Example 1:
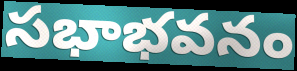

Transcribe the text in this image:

సభాభవనం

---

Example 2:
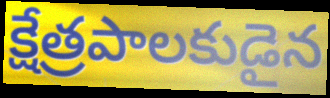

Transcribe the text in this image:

క్షేత్రపాలకుడైన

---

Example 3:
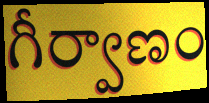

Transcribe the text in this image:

గీర్వాణం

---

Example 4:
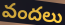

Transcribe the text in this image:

వందలు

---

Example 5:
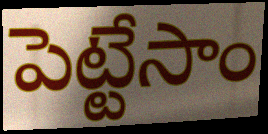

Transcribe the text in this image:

పెట్టేసాం